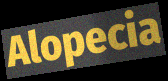
Alopecia